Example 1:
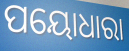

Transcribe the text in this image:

ପୟୋଧାରା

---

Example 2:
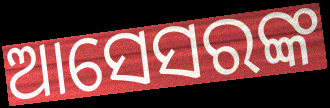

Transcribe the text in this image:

ଆସେସରଙ୍କ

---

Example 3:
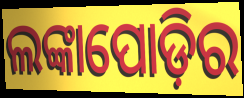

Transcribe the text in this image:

ଲଙ୍କାପୋଡ଼ିର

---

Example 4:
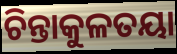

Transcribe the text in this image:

ଚିନ୍ତାକୁଳତୟା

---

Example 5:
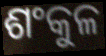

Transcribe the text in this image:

ଶଂକୁଳ